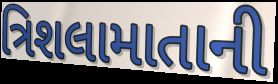
ત્રિશલામાતાની